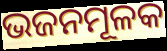
ଭଜନମୂଳକ